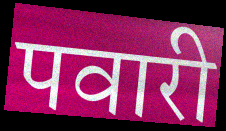
पवारी